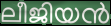
ലീജിയൻ